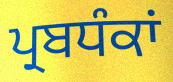
ਪ੍ਰਬਧੰਕਾਂ